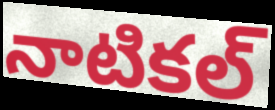
నాటికల్